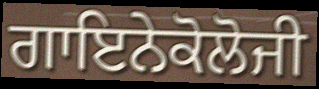
ਗਾਇਨੇਕੋਲੋਜੀ